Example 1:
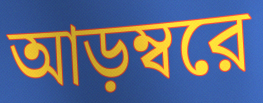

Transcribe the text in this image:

আড়ম্বরে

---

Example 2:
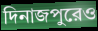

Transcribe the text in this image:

দিনাজপুরেও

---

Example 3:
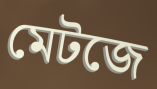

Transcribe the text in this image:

মেটজে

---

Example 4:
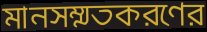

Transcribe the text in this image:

মানসম্মতকরণের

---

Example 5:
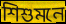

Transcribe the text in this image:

শিশুমনে